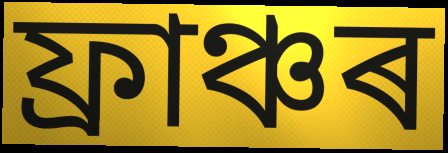
ফ্ৰাঞ্চৰ